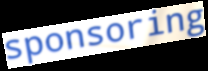
sponsoring